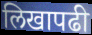
लिखापढी